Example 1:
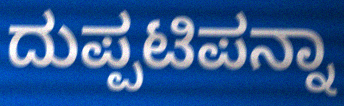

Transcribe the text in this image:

ದುಪ್ಪಟಿಪನ್ನಾ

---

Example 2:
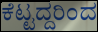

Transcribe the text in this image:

ಕೆಟ್ಟದ್ದರಿಂದ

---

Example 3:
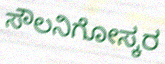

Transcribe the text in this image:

ಸೌಲನಿಗೋಸ್ಕರ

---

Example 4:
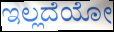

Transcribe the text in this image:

ಇಲ್ಲದೆಯೋ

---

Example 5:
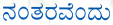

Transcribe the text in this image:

ನಂತರವೆಂದು